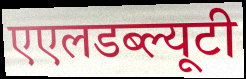
एएलडब्ल्यूटी